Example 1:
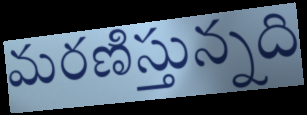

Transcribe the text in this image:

మరణిస్తున్నది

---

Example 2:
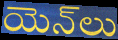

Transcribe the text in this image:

యెన్‌లు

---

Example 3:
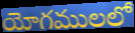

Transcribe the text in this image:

యోగములలో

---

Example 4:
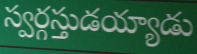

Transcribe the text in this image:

స్వర్గస్తుడయ్యాడు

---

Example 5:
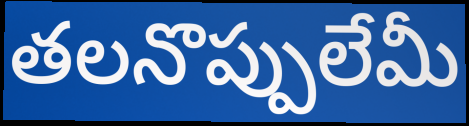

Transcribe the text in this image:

తలనొప్పులేమీ